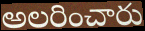
అలరించారు